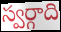
స్వర్గాది